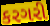
કરગરી